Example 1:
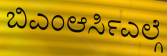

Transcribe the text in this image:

ಬಿಎಂಆರ್ಸಿಎಲ್ಗೆ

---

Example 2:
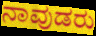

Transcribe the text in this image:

ನಾವುಡರು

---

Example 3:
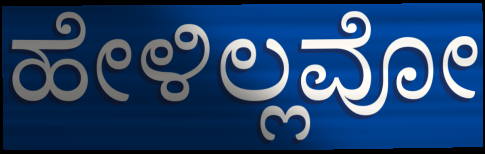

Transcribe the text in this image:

ಹೇಳಿಲ್ಲವೋ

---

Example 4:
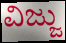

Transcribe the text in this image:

ವಿಜ್ಜು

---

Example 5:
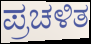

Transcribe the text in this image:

ಪ್ರಚಳಿತ